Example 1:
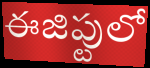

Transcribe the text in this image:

ఈజిప్టులో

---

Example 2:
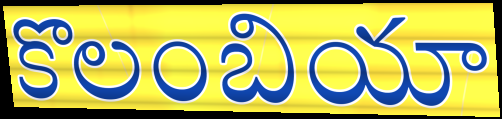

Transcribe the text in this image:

కొలంబియా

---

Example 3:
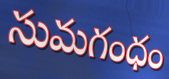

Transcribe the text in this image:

సుమగంధం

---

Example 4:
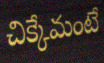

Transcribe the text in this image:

చిక్కేమంటే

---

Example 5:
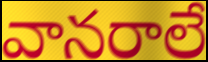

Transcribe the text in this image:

వానరాలే